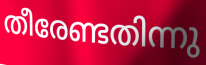
തീരേണ്ടതിന്നു